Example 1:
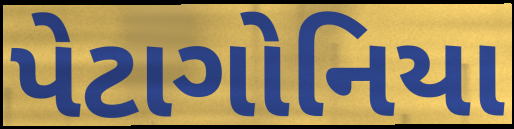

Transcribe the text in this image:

પેટાગોનિયા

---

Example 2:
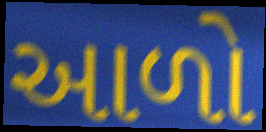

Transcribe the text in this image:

આળો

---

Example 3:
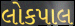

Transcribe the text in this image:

લોકપાલ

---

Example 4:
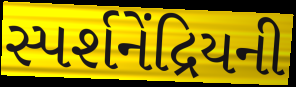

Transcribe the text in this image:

સ્પર્શનેંદ્રિયની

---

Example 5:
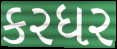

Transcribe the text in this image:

કરધર